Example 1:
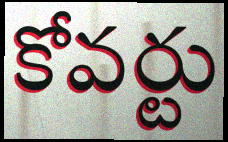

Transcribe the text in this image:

కోవర్టు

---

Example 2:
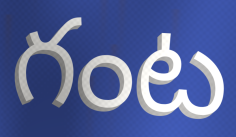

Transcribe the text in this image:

గంట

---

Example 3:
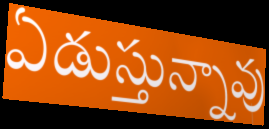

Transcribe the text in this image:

ఏడుస్తున్నావు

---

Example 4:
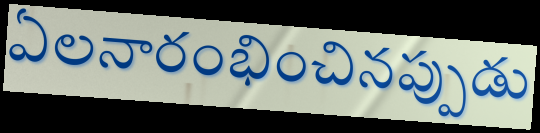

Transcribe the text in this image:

ఏలనారంభించినప్పుడు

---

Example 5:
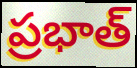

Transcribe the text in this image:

ప్రభాత్